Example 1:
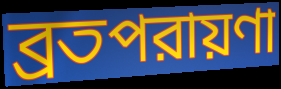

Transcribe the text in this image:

ব্রতপরায়ণা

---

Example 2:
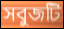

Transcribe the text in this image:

সবুজটি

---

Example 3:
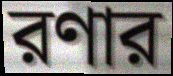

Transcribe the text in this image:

রণার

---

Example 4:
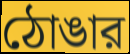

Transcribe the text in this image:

ঠোঙার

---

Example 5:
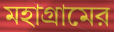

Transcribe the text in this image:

মহাগ্রামের